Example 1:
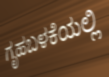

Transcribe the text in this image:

ಗೃಹಬಳಕೆಯಲ್ಲಿ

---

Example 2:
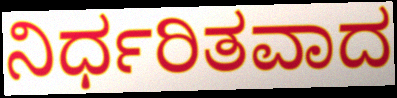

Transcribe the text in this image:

ನಿರ್ಧರಿತವಾದ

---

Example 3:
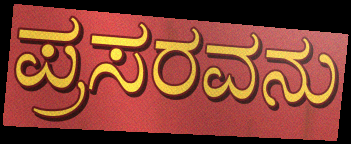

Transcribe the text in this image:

ಪ್ರಸರವನು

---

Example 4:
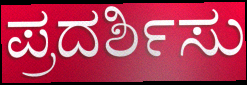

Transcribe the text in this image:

ಪ್ರದರ್ಶಿಸು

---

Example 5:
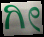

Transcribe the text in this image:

ಗೀ